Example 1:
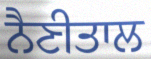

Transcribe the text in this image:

ਨੈਣੀਤਾਲ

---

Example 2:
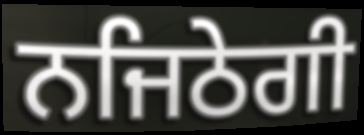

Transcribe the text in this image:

ਨਜਿਠੇਗੀ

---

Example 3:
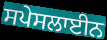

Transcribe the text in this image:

ਸਪੇਸਲਾਈਨ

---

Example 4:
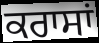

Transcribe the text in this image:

ਕਰਾਸਾਂ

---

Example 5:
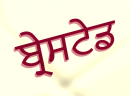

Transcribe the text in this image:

ਬ੍ਰੇਸਟੇਡ